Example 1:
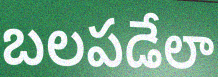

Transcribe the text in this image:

బలపడేలా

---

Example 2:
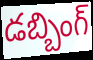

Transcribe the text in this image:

డబ్బింగ్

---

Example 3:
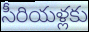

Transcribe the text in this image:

సీరియళ్లకు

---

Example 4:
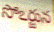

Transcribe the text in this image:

సోఽర్జున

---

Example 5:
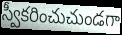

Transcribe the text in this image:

స్వీకరించుచుండగా